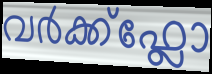
വർക്ക്ഫ്ലോ